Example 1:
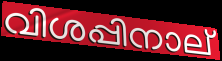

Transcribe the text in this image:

വിശപ്പിനാല്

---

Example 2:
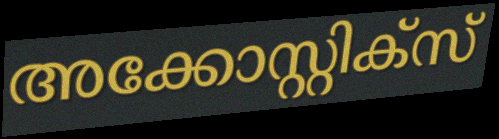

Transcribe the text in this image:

അക്കോസ്റ്റിക്സ്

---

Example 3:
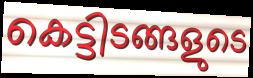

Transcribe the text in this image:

കെട്ടിടങ്ങളുടെ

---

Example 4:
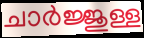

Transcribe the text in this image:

ചാർജ്ജുള്ള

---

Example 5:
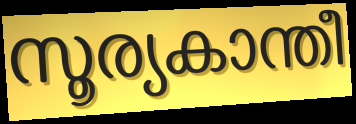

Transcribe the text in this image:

സൂര്യകാന്തീ